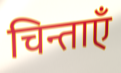
चिन्ताएँ